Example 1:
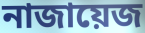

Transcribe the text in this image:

নাজায়েজ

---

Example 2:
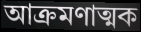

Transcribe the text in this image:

আক্রমণাত্মক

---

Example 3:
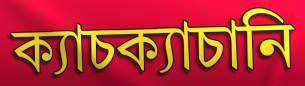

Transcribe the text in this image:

ক্যাচক্যাচানি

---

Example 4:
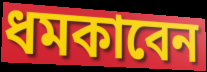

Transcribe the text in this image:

ধমকাবেন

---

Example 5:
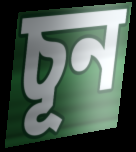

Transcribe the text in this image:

চূন